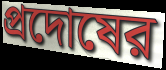
প্রদোষের